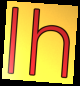
Ih